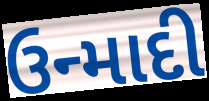
ઉન્માદી